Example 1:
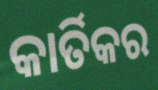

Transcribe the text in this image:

କାର୍ତିକର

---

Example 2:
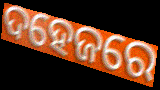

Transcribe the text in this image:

ଦହେଜରେ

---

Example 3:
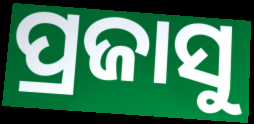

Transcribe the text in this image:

ପ୍ରଜାସୁ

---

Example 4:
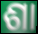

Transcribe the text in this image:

ଶା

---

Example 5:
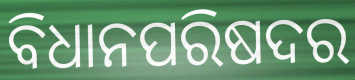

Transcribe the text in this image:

ବିଧାନପରିଷଦର